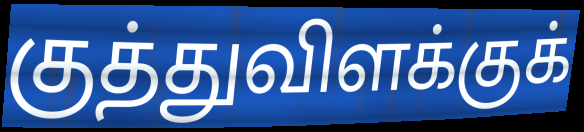
குத்துவிளக்குக்